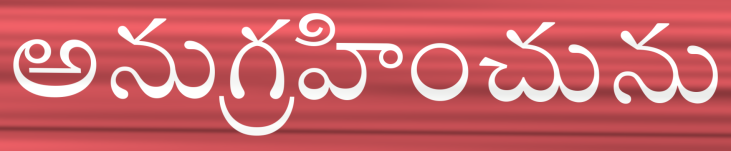
అనుగ్రహించును